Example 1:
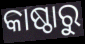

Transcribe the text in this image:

କାଷ୍ଠାରୁ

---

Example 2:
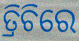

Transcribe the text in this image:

ତ୍ରିଚିରେ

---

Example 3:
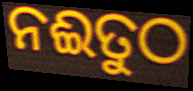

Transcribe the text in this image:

ନଈତୁଠ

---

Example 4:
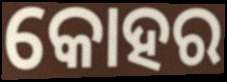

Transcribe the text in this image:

କୋହର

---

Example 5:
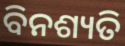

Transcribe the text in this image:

ବିନଶ୍ୟତି